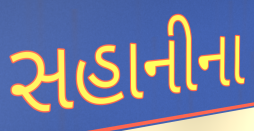
સહાનીના